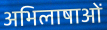
अभिलाषाओं